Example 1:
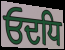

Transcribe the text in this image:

ਓਦਧਿ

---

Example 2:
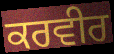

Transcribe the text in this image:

ਕਰਵੀਰ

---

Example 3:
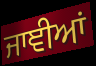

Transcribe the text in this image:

ਜਾਞੀਆਂ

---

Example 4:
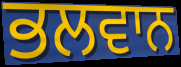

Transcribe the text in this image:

ਭਲਵਾਨ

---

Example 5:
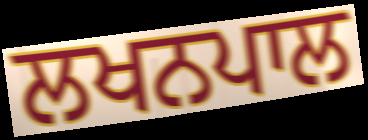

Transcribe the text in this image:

ਲਖਨਪਾਲ